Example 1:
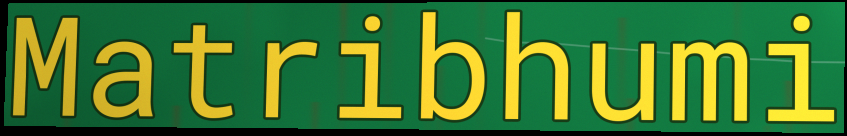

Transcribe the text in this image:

Matribhumi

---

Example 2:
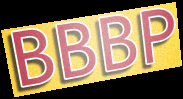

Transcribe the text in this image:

BBBP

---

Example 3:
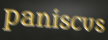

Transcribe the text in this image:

paniscus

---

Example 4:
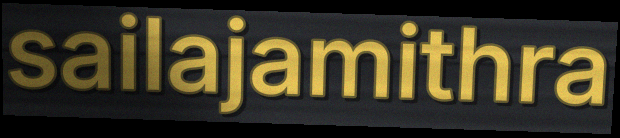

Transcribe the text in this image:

sailajamithra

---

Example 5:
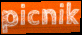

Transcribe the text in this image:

picnik